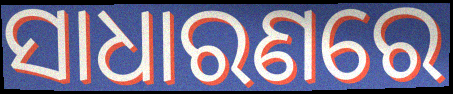
ସାଧାରଣରେ